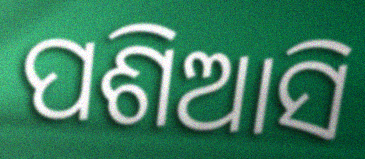
ପଶିଆସି